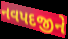
નવપદજીને